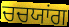
ਚਚਯਾਂਗ